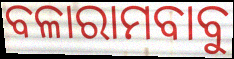
ବଳାରାମବାବୁ